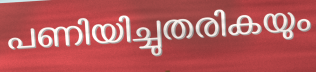
പണിയിച്ചുതരികയും